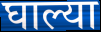
घाल्या